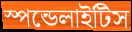
স্পন্ডেলাইটিস